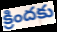
క్రిందకు